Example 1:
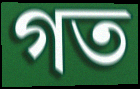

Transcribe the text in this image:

গত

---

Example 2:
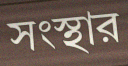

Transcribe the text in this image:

সংস্থার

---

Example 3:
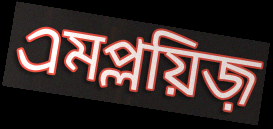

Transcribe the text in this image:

এমপ্লয়িজ়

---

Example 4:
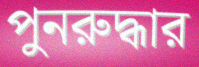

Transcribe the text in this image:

পুনরুদ্ধার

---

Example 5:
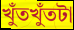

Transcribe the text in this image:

খুঁতখুঁতটা